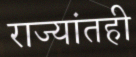
राज्यांतही